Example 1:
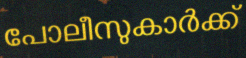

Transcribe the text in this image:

പോലീസുകാർക്ക്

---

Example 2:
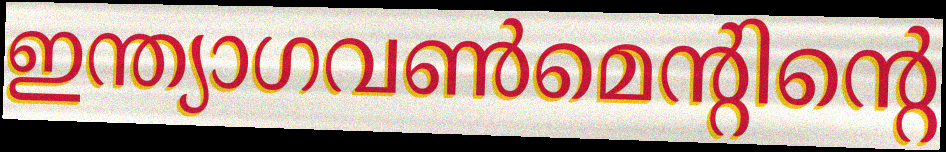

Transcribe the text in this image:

ഇന്ത്യാഗവൺമെന്റിന്റെ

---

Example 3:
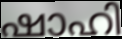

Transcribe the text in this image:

ഷാഹി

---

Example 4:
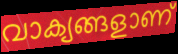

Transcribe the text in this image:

വാക്യങ്ങളാണ്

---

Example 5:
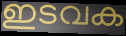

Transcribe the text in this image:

ഇടവക